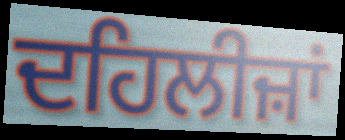
ਦਹਿਲੀਜ਼ਾਂ